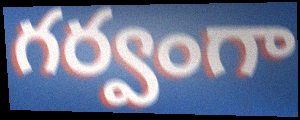
గర్వంగా